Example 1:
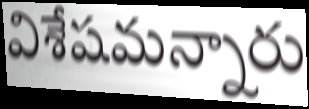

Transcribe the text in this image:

విశేషమన్నారు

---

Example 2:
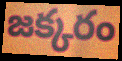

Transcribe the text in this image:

జక్కరం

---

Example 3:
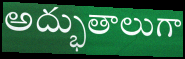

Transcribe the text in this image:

అద్భుతాలుగా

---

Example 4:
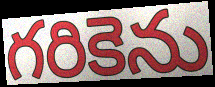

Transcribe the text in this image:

గరికెను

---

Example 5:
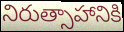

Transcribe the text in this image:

నిరుత్సాహానికి